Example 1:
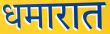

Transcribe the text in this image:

धमारात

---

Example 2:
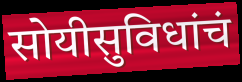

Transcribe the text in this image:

सोयीसुविधांचं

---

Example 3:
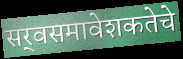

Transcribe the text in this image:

सर्वसमावेशकतेचे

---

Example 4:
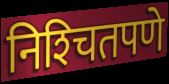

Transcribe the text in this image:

निश्‍चितपणे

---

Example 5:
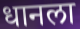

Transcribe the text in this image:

धानला